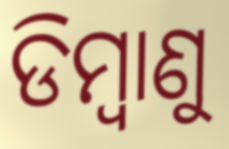
ଡିମ୍ୱାଣୁ